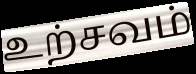
உற்சவம்